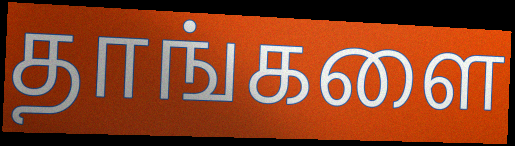
தாங்களை